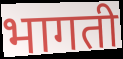
भागती